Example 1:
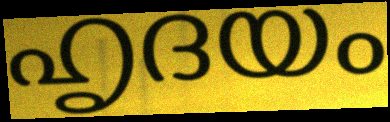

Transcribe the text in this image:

ഹൃദയം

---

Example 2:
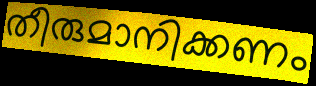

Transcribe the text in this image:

തീരുമാനിക്കണം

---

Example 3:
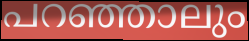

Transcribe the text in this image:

പറഞ്ഞാലും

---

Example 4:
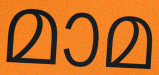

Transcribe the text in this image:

മാമ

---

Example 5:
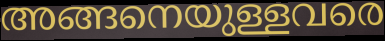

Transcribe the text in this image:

അങ്ങനെയുള്ളവരെ